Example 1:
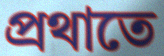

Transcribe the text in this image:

প্ৰথাতে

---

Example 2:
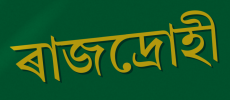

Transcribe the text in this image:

ৰাজদ্ৰোহী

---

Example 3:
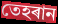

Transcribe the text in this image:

তেহৰান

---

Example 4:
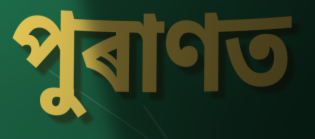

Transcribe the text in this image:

পুৰাণত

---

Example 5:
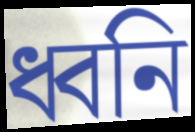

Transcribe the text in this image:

ধ্বনি